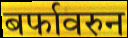
बर्फावरुन